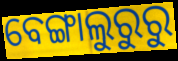
ବେଙ୍ଗାଲୁରୁରୁ